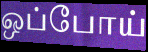
ஒப்போய்